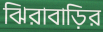
ঝিরাবাড়ির